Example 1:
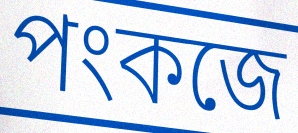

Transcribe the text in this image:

পংকজে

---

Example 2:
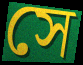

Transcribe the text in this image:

সে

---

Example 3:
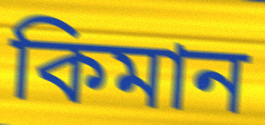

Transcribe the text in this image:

কিমান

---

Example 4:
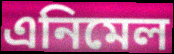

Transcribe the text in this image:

এনিমেল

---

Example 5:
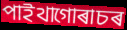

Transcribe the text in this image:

পাইথাগোৰাচৰ